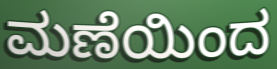
ಮಣೆಯಿಂದ